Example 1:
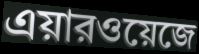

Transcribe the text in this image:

এয়ারওয়েজে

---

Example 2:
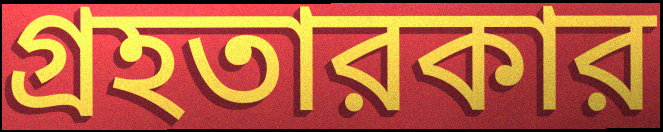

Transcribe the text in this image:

গ্রহতারকার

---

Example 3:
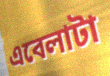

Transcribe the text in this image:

এবেলাটা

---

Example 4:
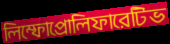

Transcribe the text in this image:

লিম্ফোপ্রোলিফারেটিভ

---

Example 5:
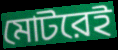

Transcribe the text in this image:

মোটরেই